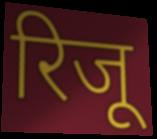
रिजू